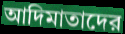
আদিমাতাদের